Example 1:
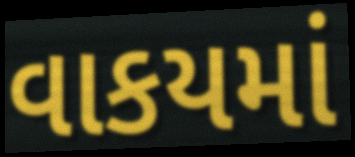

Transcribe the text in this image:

વાકયમાં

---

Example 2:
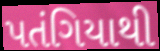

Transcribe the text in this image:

પતંગિયાથી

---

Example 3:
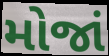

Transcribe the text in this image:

મોજાં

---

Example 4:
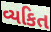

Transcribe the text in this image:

વ્યકિત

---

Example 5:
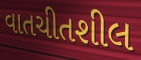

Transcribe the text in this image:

વાતચીતશીલ